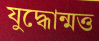
যুদ্ধোন্মত্ত